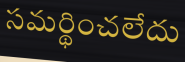
సమర్థించలేదు